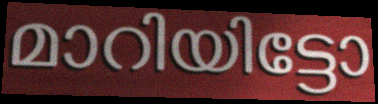
മാറിയിട്ടോ